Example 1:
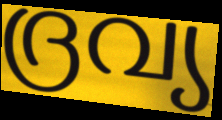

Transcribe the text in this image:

ദ്രവ്യ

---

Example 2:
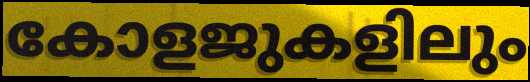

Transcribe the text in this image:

കോളജുകളിലും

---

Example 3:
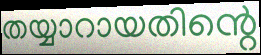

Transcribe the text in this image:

തയ്യാറായതിന്റെ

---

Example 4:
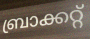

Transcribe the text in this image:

ബ്രാക്കറ്റ്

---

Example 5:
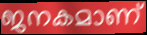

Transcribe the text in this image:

ജനകമാണ്